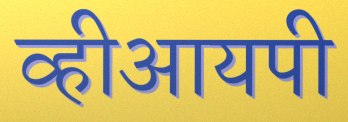
व्हीआयपी